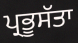
ਪ੍ਰਭੂਸੱਤਾ